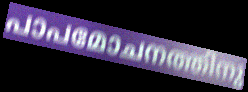
പാപമോചനത്തിനു